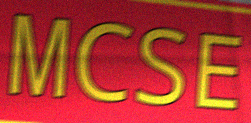
MCSE